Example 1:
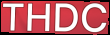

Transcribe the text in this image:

THDC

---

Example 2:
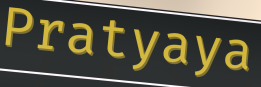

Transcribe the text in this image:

Pratyaya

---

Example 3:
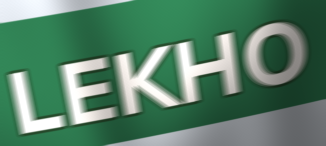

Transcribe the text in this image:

LEKHO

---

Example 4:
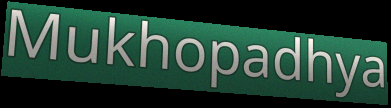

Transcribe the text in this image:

Mukhopadhya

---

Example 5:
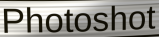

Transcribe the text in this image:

Photoshot